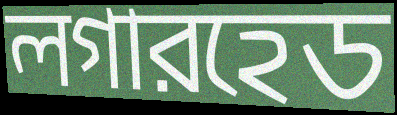
লগারহেড